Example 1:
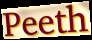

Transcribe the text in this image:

Peeth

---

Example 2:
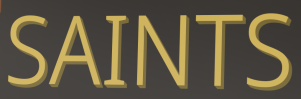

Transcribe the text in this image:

SAINTS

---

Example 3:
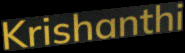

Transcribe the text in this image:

Krishanthi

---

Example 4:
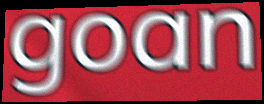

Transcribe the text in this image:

goan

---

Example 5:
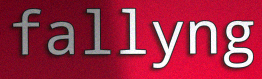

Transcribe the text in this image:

fallyng